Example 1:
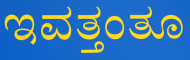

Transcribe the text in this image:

ಇವತ್ತಂತೂ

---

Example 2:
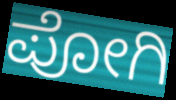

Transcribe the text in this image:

ಪೋಗಿ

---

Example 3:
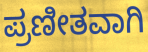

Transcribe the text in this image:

ಪ್ರಣೀತವಾಗಿ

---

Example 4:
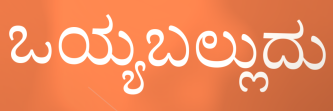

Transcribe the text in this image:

ಒಯ್ಯಬಲ್ಲುದು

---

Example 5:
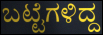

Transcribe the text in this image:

ಬಟ್ಟೆಗಳಿದ್ದ